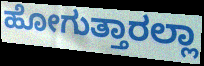
ಹೋಗುತ್ತಾರಲ್ಲಾ